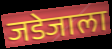
जडेजाला